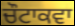
ਚੌਟਾਕਵਾ